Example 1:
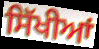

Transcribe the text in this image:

ਸਿੱਖੀਆਂ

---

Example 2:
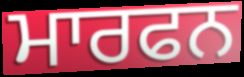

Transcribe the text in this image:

ਮਾਰਫਨ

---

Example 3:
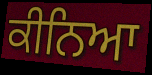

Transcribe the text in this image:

ਕੀਨਿਆ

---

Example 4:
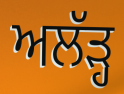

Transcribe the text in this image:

ਅਲੱੜ੍ਹ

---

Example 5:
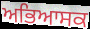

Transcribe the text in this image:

ਅਭਿਆਸਕ